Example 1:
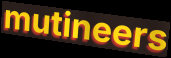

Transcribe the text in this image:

mutineers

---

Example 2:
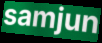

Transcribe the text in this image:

samjun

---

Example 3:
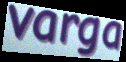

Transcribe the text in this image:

varga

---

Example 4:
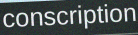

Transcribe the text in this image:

conscription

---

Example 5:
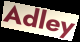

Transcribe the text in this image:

Adley